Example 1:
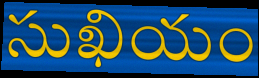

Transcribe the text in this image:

సుఖియం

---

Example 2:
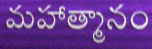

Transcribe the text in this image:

మహాత్మానం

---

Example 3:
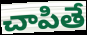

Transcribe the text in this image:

చాపితే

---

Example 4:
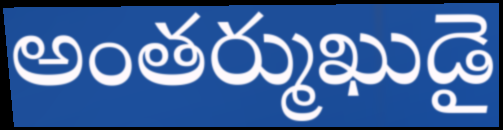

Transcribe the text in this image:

అంతర్ముఖుడై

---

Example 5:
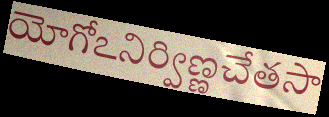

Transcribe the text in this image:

యోగోఽనిర్విణ్ణచేతసా